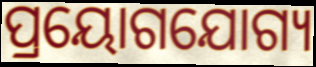
ପ୍ରୟୋଗଯୋଗ୍ୟ